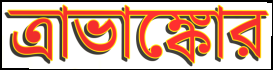
ত্রাভাঙ্কোর